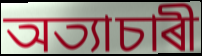
অত্যাচাৰী